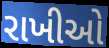
રાખીઓ